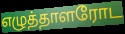
எழுத்தாளரோட